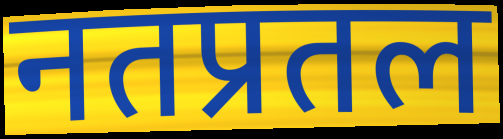
नतप्रतल